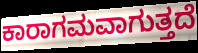
ಕಾರಾಗಮವಾಗುತ್ತದೆ